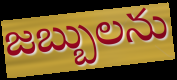
జబ్బులను